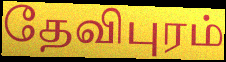
தேவிபுரம்